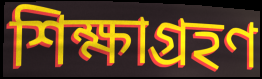
শিক্ষাগ্ৰহণ